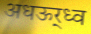
अधऊर्ध्व